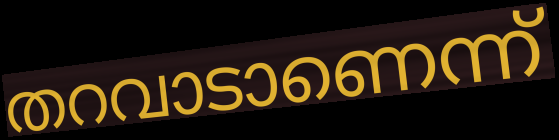
തറവാടാണെന്ന്